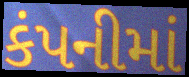
કંપનીમાં